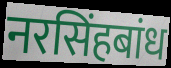
नरसिंहबांध